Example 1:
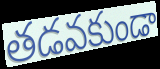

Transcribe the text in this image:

తడవకుండా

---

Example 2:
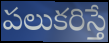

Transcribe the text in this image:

పలుకరిస్తే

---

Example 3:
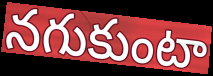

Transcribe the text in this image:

నగుకుంటా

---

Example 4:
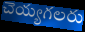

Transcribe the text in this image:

చెయ్యగలరు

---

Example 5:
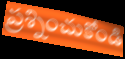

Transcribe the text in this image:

ప్రశ్నించుకోండి